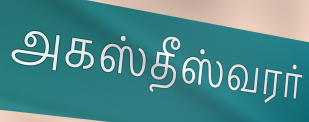
அகஸ்தீஸ்வரர்